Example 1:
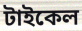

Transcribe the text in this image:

টাইকেল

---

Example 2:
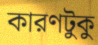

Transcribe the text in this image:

কারণটুকু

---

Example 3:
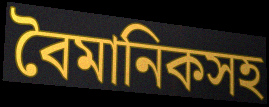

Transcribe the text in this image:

বৈমানিকসহ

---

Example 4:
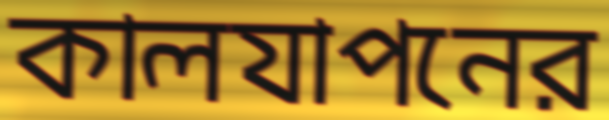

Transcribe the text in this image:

কালযাপনের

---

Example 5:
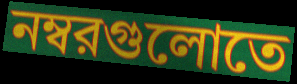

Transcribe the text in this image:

নম্বরগুলোতে